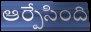
ఆర్పేసింది